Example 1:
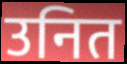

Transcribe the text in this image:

उनित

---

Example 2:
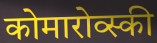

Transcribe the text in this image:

कोमारोव्स्की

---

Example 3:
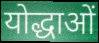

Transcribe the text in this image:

योद्धाओं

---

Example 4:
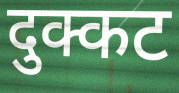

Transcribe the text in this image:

दुक्कट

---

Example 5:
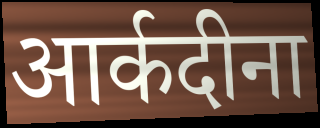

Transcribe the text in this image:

आर्कदीना